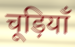
चूड़ियाँ